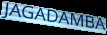
JAGADAMBA